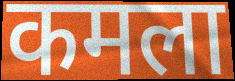
कमला